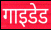
गाइडेड